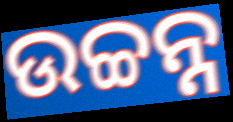
ଉଚ୍ଚନ୍ନ